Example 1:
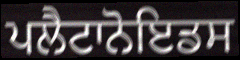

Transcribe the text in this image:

ਪਲੈਟਾਨੋਇਡਸ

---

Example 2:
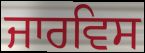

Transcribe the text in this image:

ਜਾਰਵਿਸ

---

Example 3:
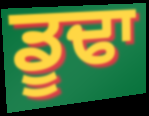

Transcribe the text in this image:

ਡੂਢਾ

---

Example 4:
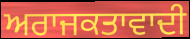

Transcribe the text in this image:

ਅਰਾਜਕਤਾਵਾਦੀ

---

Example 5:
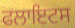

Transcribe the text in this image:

ਫਲਾਇਟਸ